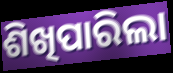
ଶିଖିପାରିଲା